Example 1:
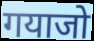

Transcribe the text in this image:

गयाजो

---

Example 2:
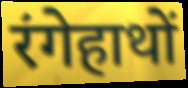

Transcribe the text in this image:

रंगेहाथों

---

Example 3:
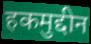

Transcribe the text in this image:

हकमुद्दीन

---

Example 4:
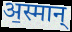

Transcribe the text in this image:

अ॒स्मान्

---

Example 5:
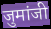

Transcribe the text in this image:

जुमांजी